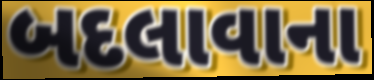
બદલાવાના